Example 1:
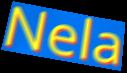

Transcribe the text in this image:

Nela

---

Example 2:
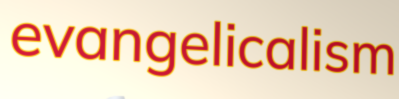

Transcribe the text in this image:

evangelicalism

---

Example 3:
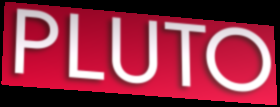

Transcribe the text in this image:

PLUTO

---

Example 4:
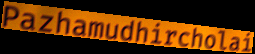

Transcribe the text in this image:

Pazhamudhircholai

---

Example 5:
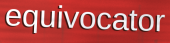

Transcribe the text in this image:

equivocator